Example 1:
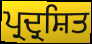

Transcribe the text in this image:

ਪ੍ਰਦ੍ਰਸ਼ਿਤ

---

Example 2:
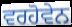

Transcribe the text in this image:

ਵਰਹੋਵੇਨ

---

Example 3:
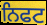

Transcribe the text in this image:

ਨਿਫਟ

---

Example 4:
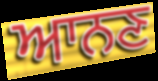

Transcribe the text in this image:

ਆਨਣ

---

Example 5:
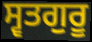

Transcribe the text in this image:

ਸ੍ਵਤਗੁਰੂ